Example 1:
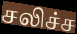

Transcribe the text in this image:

சலிச்ச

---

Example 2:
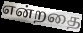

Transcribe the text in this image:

என்றதை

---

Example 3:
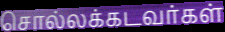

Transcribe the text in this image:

சொல்லக்கடவர்கள்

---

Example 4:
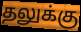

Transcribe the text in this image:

தலுக்கு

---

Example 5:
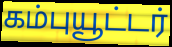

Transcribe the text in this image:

கம்புயூட்டர்